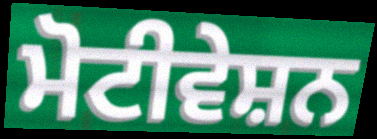
ਮੋਟੀਵੇਸ਼ਨ